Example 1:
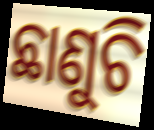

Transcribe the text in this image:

ଛାଣୁଚି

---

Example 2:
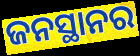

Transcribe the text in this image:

ଜନସ୍ଥାନର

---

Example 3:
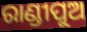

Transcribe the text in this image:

ରାଣ୍ଡୀପୁଅ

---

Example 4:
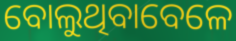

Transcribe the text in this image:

ବୋଲୁଥିବାବେଳେ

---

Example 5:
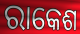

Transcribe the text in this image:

ରାକେଶ